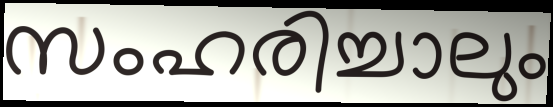
സംഹരിച്ചാലും